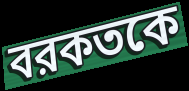
বরকতকে